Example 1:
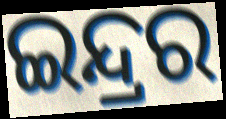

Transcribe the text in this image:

ଇନ୍ଦ୍ରର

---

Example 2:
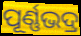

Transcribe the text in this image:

ପୂର୍ଣ୍ଣଭଦ୍ର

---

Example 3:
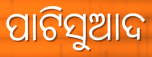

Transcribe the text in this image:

ପାଟିସୁଆଦ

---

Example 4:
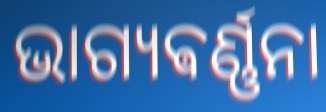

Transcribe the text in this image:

ଭାଗ୍ୟଵର୍ଣ୍ଣନା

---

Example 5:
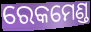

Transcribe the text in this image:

ରେକମେଣ୍ଡ